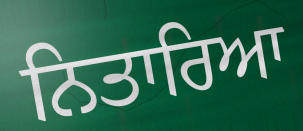
ਨਿਤਾਰਿਆ